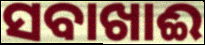
ସବାଖାଈ